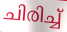
ചിരിച്ച്